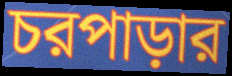
চরপাড়ার